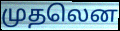
முதலென